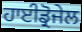
ਹਾਈਡ੍ਰੋਜੇਲ